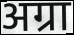
अग्रा